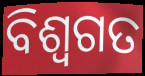
ବିଶ୍ୱଗତ